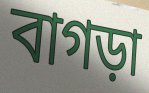
বাগড়া